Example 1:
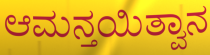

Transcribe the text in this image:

ಆಮನ್ತಯಿತ್ವಾನ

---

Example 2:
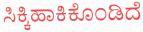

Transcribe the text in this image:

ಸಿಕ್ಕಿಹಾಕಿಕೊಂಡಿದೆ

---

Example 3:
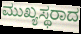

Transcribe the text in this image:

ಮುಖ್ಯಸ್ಥರಾದ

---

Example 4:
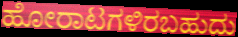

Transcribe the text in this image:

ಹೋರಾಟಗಳಿರಬಹುದು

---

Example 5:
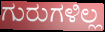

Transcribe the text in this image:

ಗುರುಗಳಿಲ್ಲ